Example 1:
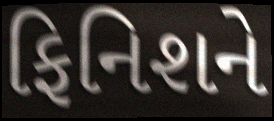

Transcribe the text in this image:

ફિનિશને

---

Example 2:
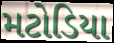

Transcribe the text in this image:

મટોડિયા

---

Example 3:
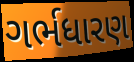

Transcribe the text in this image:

ગર્ભધારણ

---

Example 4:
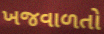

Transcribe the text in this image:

ખજવાળતો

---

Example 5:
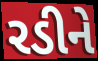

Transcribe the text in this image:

રડીને